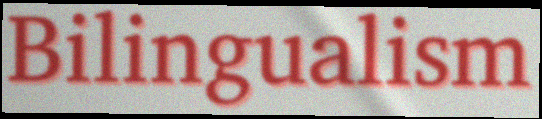
Bilingualism